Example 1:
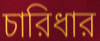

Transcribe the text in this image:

চারিধার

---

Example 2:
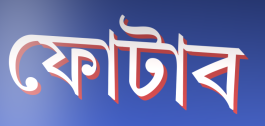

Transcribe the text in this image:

ফোটাব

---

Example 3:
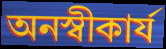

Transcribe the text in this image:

অনস্বীকার্য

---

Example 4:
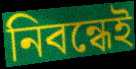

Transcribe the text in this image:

নিবন্ধেই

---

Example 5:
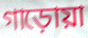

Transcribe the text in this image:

গাড়োয়া